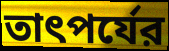
তাৎপর্যের